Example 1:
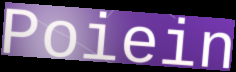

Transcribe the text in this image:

Poiein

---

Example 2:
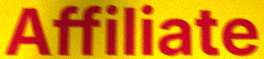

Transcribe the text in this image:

Affiliate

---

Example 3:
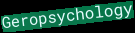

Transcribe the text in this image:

Geropsychology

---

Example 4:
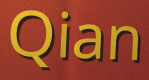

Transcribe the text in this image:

Qian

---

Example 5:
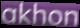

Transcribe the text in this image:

akhon